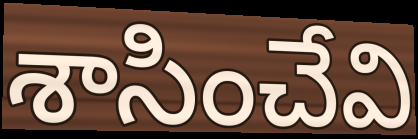
శాసించేవి